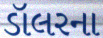
ડૉલરના